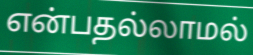
என்பதல்லாமல்